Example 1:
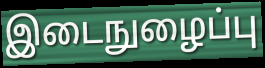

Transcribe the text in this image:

இடைநுழைப்பு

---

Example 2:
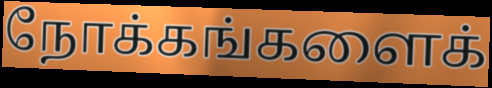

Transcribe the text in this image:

நோக்கங்களைக்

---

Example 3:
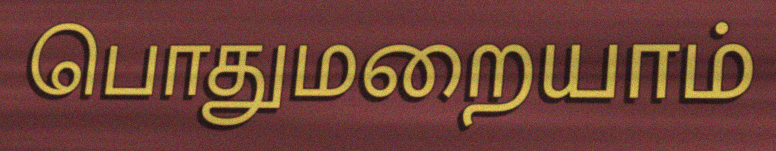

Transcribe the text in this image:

பொதுமறையாம்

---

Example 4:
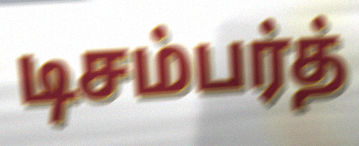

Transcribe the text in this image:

டிசம்பர்த்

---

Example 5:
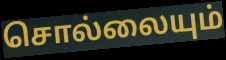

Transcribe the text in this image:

சொல்லையும்